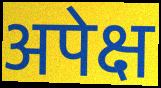
अपेक्ष